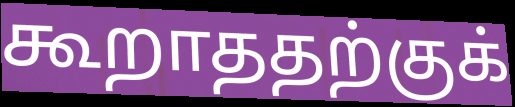
கூறாததற்குக்